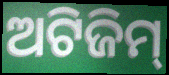
ଅଟିଜିମ୍